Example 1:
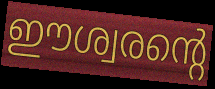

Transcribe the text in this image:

ഈശ്വരന്റെ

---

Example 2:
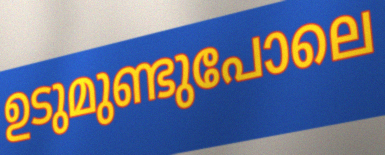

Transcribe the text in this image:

ഉടുമുണ്ടുപോലെ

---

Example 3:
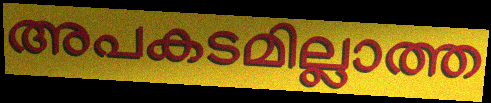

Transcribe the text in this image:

അപകടമില്ലാത്ത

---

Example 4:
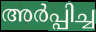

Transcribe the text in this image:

അർപ്പിച്ച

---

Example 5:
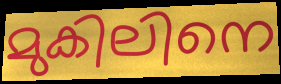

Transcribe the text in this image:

മുകിലിനെ